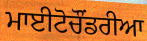
ਮਾਈਟੋਚੌਂਡਰੀਆ